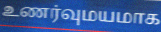
உணர்வுமயமாக